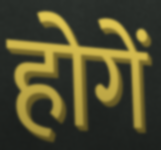
होगें